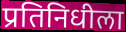
प्रतिनिधीला